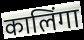
कालिंगा